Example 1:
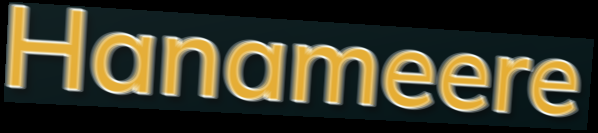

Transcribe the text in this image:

Hanameere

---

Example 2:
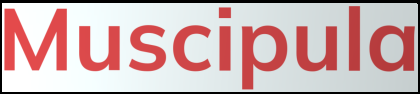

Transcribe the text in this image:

Muscipula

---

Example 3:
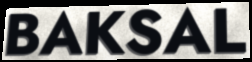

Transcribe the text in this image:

BAKSAL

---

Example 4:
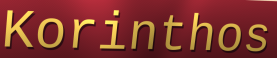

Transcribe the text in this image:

Korinthos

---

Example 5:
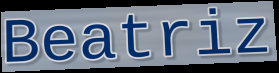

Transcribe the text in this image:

Beatriz